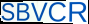
SBVCR